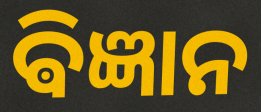
ଵିଜ୍ଞାନ